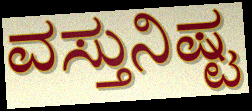
ವಸ್ತುನಿಷ್ಟ